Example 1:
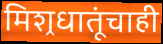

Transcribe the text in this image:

मिश्रधातूंचाही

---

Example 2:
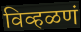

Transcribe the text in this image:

विव्हळणं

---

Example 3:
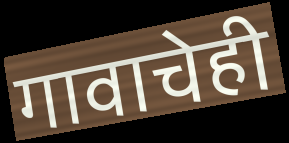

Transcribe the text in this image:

गावाचेही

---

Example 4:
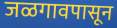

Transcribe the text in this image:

जळगावपासून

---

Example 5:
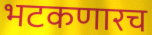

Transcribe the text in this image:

भटकणारच